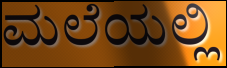
ಮಲೆಯಲ್ಲಿ